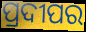
ପ୍ରଦୀପର